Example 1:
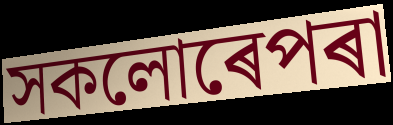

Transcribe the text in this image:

সকলোৰেপৰা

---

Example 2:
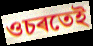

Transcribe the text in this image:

ওচৰতেই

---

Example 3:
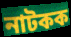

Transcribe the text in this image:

নাটকক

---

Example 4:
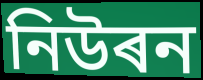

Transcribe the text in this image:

নিউৰন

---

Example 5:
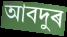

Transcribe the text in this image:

আবদুৰ